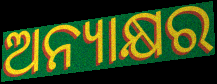
ଅନ୍ୟାକ୍ଷର